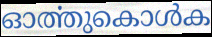
ഓൎത്തുകൊൾക